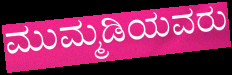
ಮುಮ್ಮಡಿಯವರು